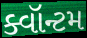
ક્વૉન્ટમ